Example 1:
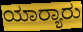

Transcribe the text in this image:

ಯಾರ‍್ಯಾರು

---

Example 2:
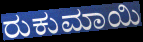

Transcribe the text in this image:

ರುಕುಮಾಯಿ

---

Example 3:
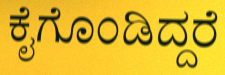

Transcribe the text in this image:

ಕೈಗೊಂಡಿದ್ದರೆ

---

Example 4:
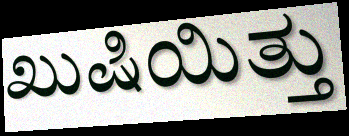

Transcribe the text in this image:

ಖುಷಿಯಿತ್ತು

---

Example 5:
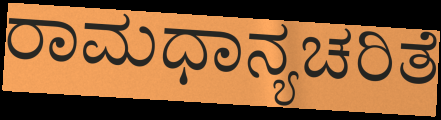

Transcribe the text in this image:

ರಾಮಧಾನ್ಯಚರಿತೆ